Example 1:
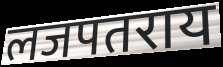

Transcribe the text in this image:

लजपतराय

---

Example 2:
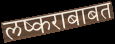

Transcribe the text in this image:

लष्कराबाबत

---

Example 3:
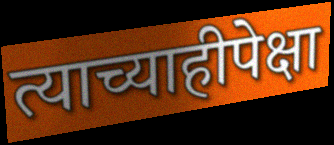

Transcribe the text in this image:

त्याच्याहीपेक्षा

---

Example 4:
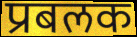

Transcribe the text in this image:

प्रबलक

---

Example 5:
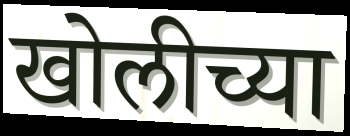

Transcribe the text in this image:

खोलीच्या